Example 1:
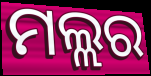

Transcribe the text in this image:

ମଲ୍ଲର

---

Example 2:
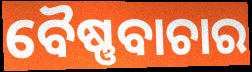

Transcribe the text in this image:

ବୈଷ୍ଣବାଚାର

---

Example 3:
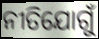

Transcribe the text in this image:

ନୀତିଯୋଗୁଁ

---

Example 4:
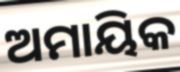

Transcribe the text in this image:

ଅମାୟିକ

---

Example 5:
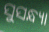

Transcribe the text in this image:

ସୁସନ୍ଧ୍ୟା